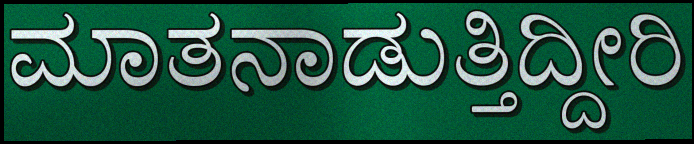
ಮಾತನಾಡುತ್ತಿದ್ದೀರಿ